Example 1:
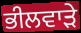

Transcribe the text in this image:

ਭੀਲਵਾੜੇ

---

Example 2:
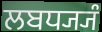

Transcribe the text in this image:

ਲਬਧ੍ਯ੍ਯੰ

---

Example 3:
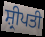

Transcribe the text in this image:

ਸ਼੍ਰੀਪਤੀ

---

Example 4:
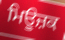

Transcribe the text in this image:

ਮਿਊਜ਼ਕ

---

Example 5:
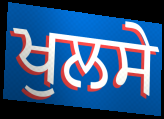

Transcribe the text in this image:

ਖੁਲਸੇ